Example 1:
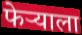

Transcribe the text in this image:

फेऱ्याला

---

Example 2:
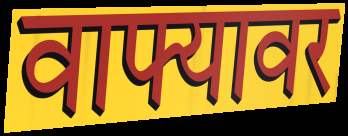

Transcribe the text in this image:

वाफ्यावर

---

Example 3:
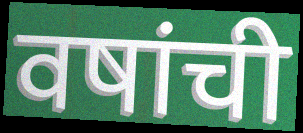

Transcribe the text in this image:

वषांची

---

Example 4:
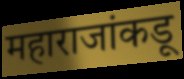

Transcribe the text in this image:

महाराजांकडू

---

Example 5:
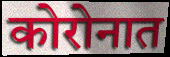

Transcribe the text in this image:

कोरोनात